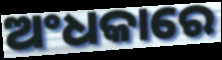
ଅଂଧକାରେ